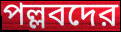
পল্লবদের